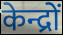
केन्द्रों